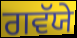
ਗਵੱਯੇ